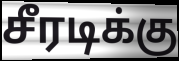
சீரடிக்கு